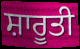
ਸ਼ਾਰੂਤੀ